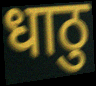
धाठु